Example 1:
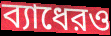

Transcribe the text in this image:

ব্যাধেরও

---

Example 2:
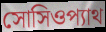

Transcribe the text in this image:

সোসিওপ্যাথ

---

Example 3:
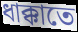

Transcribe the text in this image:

ধাক্কাতে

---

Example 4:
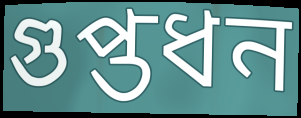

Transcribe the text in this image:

গুপ্তধন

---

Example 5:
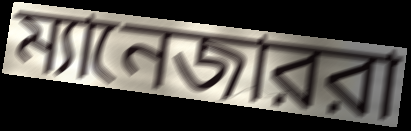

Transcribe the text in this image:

ম্যানেজাররা